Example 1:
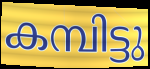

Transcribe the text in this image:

കമ്പിട്ടു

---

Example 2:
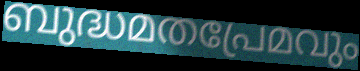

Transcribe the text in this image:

ബുദ്ധമതപ്രേമവും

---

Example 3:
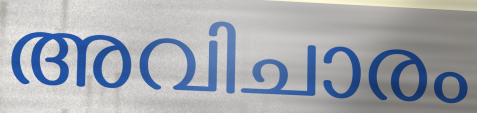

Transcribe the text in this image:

അവിചാരം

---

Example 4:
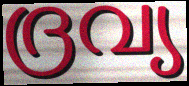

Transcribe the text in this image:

ദ്രവ്യ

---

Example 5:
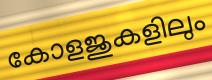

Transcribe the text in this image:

കോളജുകളിലും